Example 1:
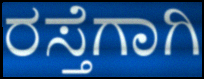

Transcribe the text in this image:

ರಸ್ತೆಗಾಗಿ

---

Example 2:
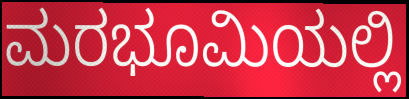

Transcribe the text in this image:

ಮರಭೂಮಿಯಲ್ಲಿ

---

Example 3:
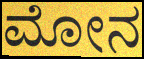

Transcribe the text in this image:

ಮೋನ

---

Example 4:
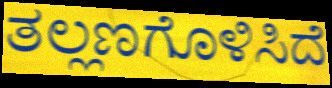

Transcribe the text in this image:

ತಲ್ಲಣಗೊಳಿಸಿದೆ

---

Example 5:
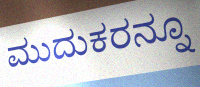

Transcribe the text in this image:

ಮುದುಕರನ್ನೂ